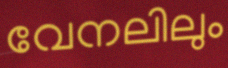
വേനലിലും